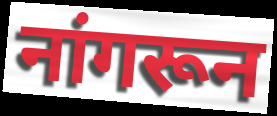
नांगरून